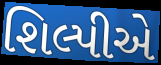
શિલ્પીએ